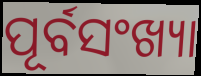
ପୂର୍ବସଂଖ୍ୟା